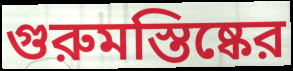
গুরুমস্তিষ্কের